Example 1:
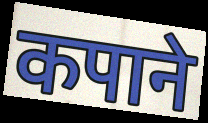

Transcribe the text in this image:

कपाने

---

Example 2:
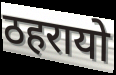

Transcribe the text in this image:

ठहरायो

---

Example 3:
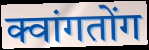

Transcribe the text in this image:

क्वांगतोंग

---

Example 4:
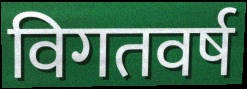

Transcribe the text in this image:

विगतवर्ष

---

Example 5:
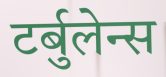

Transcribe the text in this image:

टर्बुलेन्स